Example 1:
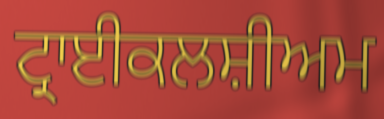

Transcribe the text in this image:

ਟ੍ਰਾਈਕਲਸ਼ੀਅਮ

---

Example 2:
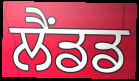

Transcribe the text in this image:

ਲੈਂਡਡ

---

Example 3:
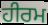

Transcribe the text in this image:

ਹੀਰਮ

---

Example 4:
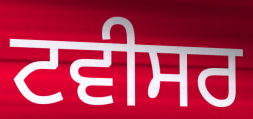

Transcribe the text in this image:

ਟਵੀਸਰ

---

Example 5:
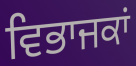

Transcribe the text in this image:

ਵਿਭਾਜਕਾਂ